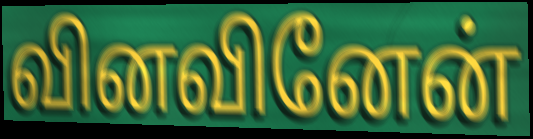
வினவினேன்